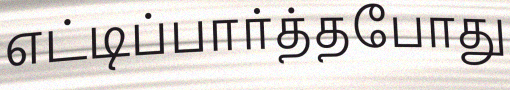
எட்டிப்பார்த்தபோது